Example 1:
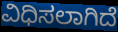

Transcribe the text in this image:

ವಿಧಿಸಲಾಗಿದೆ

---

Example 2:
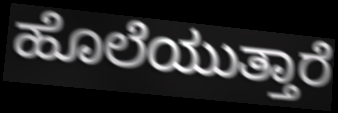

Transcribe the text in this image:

ಹೊಲೆಯುತ್ತಾರೆ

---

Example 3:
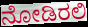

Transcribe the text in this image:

ನೋಡಿರಲಿ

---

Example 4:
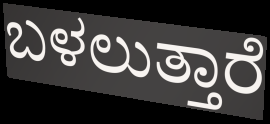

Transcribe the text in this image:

ಬಳಲುತ್ತಾರೆ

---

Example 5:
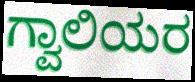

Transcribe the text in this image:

ಗ್ವಾಲಿಯರ